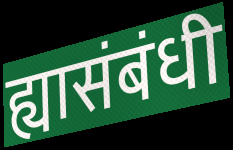
ह्यासंबंधी